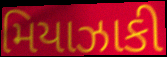
મિયાઝાકી